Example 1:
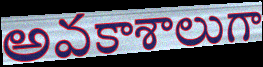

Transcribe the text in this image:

అవకాశాలుగా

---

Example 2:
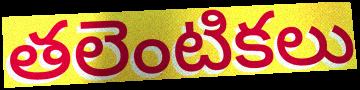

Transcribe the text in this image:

తలెంటికలు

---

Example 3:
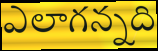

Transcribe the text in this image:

ఎలాగన్నది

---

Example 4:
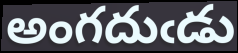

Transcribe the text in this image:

అంగదుఁడు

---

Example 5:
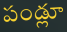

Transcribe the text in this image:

పండ్లూ